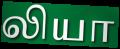
லியா